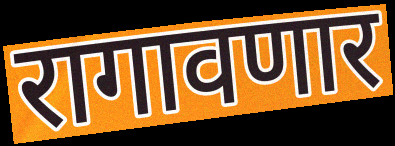
रागावणार